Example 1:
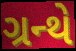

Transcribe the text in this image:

ગ્રન્થે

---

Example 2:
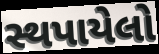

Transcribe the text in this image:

સ્થપાયેલો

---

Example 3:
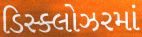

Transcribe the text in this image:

ડિસ્ક્લોઝરમાં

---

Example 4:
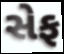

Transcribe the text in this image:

સેફ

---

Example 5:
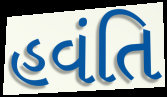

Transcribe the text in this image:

હવંતિ